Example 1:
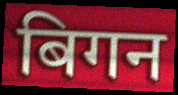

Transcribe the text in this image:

बिगन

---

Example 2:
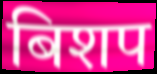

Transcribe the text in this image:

बिशप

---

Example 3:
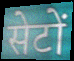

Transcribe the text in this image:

सेटों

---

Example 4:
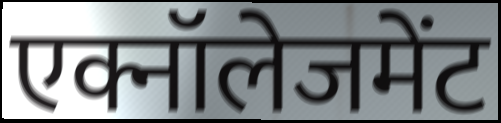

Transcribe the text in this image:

एक्नॉलेजमेंट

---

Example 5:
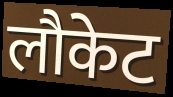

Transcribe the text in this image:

लौकेट